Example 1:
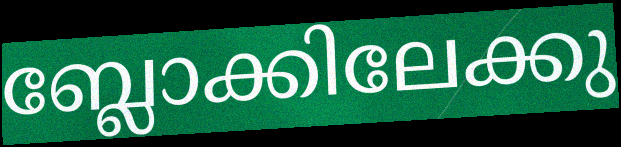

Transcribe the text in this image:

ബ്ലോക്കിലേക്കു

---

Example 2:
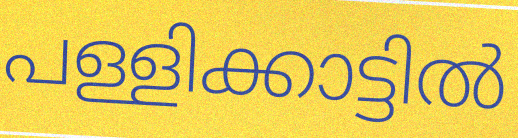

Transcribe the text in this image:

പള്ളിക്കാട്ടിൽ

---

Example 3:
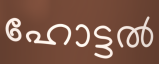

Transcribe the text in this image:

ഹോട്ടൽ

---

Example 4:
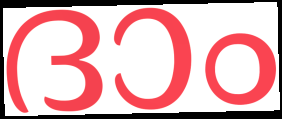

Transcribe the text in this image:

ദാം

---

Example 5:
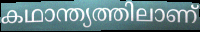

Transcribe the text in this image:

കഥാന്ത്യത്തിലാണ്